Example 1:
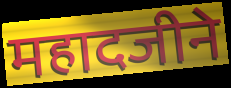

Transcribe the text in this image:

महादजीने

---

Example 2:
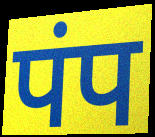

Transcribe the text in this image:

पंप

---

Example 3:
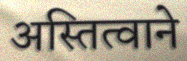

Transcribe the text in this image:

अस्तित्वाने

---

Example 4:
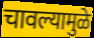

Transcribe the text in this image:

चावल्यामुळे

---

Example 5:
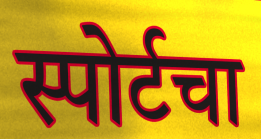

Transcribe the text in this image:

स्पोर्टचा